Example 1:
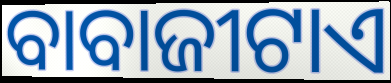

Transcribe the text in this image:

ବାବାଜୀଟାଏ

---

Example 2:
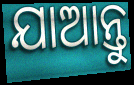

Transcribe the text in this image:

ଯାଆନ୍ତୁ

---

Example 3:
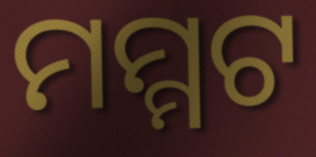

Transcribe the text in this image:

ମମ୍ମଟ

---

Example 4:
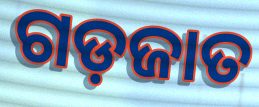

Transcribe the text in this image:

ଗଡ଼ଜାତ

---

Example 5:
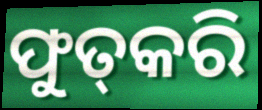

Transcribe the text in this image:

ଫୁତ୍‌କରି